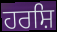
ਹਰਸ਼ਿ